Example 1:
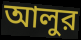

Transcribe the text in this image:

আলুর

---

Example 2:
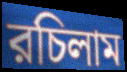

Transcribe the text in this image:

রচিলাম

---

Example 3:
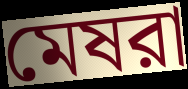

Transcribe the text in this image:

মেষরা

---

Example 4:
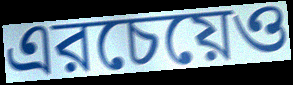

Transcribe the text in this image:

এরচেয়েও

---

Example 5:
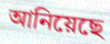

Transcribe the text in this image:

আনিয়েছে